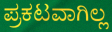
ಪ್ರಕಟವಾಗಿಲ್ಲ